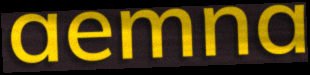
aemna